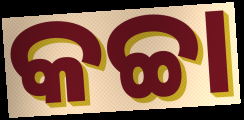
କଚ୍ଚା